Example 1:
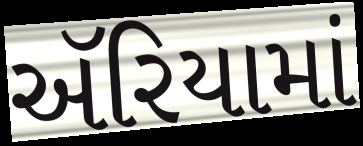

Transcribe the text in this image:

ઍરિયામાં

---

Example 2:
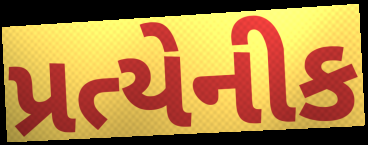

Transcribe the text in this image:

પ્રત્યેનીક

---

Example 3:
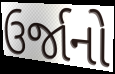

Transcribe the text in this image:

ઉર્જાનો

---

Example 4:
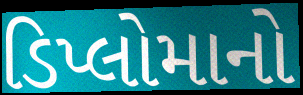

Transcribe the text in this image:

ડિપ્લોમાનો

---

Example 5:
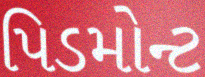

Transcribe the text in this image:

પિડમોન્ટ